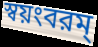
স্বয়ংবরম্